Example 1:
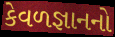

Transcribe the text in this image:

કેવળજ્ઞાનનો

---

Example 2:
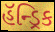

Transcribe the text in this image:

હૅન્ડ્રિક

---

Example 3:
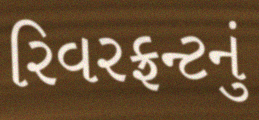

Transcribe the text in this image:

રિવરફ્રન્ટનું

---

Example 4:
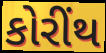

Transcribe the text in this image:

કોરીંથ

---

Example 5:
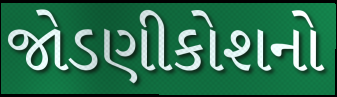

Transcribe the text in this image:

જોડણીકોશનો